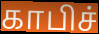
காபிச்